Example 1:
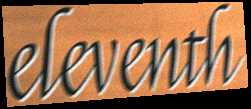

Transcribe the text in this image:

eleventh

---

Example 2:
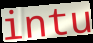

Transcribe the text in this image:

intu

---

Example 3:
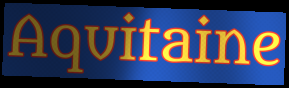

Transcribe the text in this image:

Aquitaine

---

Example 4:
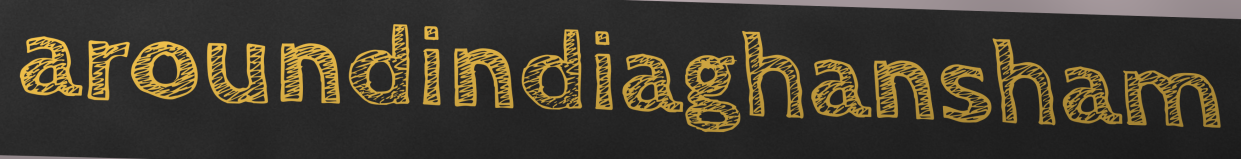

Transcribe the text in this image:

aroundindiaghansham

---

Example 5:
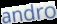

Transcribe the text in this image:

andro